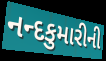
નન્દકુમારીની